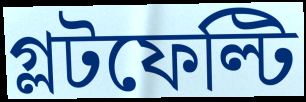
গ্লটফেল্টি